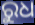
ରୁଧ